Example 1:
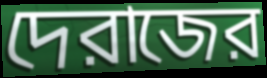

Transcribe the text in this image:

দেরাজের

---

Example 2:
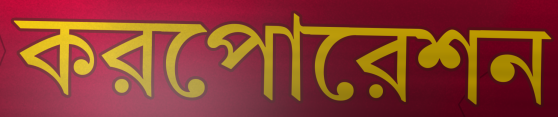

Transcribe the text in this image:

করপোরেশন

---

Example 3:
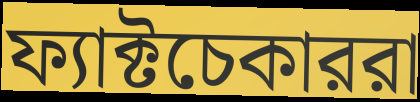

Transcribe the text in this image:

ফ্যাক্টচেকাররা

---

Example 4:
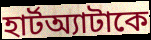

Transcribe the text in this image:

হার্টঅ্যাটাকে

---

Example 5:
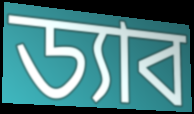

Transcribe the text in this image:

ড্যাব